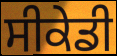
ਸੀਕੇਡੀ